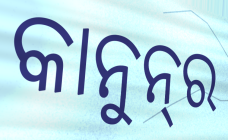
କାନୁନ୍‌ର